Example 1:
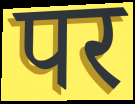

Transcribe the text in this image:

पर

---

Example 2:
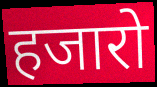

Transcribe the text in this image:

हजारो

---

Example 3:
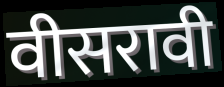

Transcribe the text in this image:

वीसरावी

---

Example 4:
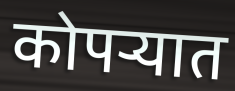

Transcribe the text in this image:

कोपर्‍यात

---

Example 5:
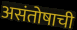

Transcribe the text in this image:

असंतोषाची